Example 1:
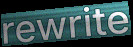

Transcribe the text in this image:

rewrite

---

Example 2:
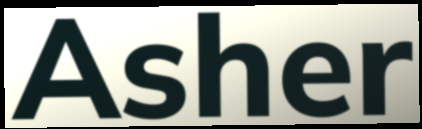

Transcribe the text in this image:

Asher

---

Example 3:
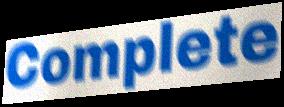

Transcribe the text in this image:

Complete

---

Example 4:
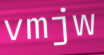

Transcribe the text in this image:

vmjw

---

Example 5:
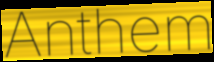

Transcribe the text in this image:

Anthem